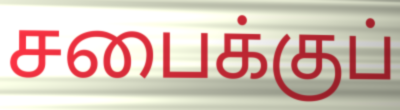
சபைக்குப்